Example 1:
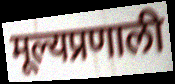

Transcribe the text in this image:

मूल्यप्रणाली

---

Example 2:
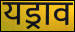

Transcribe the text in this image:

यड्राव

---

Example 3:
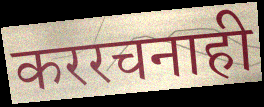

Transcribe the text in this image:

कररचनाही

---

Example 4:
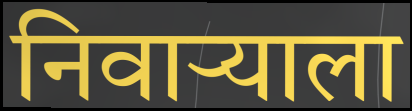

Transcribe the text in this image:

निवाऱ्याला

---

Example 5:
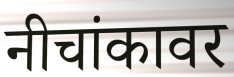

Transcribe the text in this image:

नीचांकावर